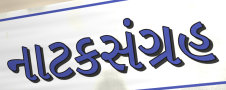
નાટકસંગ્રહ